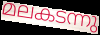
മലകടന്നു